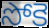
సోకె